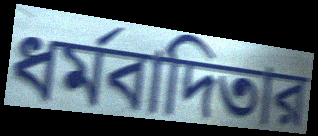
ধর্মবাদিতার